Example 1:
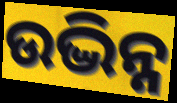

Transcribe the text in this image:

ଉଦ୍ଭିନ୍ନ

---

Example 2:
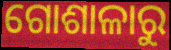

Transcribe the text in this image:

ଗୋଶାଳାରୁ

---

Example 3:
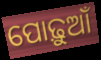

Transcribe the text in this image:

ପୋଢ଼ୁଆଁ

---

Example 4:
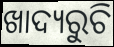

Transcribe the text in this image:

ଖାଦ୍ୟରୁଚି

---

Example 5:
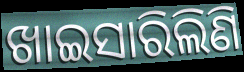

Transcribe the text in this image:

ଖାଇସାରିଲିଣି